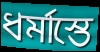
ধর্মাস্তে